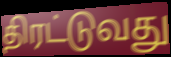
திரட்டுவது